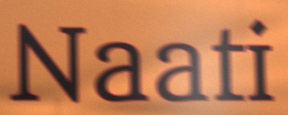
Naati